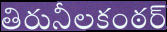
తిరునీలకంఠర్